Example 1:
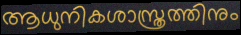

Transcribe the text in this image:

ആധുനികശാസ്ത്രത്തിനും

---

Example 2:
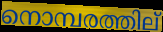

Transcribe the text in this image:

നൊമ്പരത്തില്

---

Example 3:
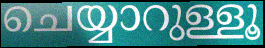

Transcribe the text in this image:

ചെയ്യാറുള്ളൂ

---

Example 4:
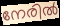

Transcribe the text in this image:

നേരിൽ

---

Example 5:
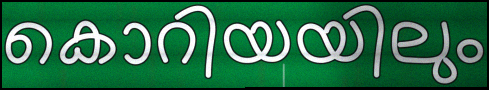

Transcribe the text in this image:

കൊറിയയിലും